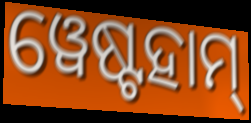
ୱେଷ୍ଟହାମ୍